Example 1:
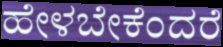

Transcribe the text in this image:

ಹೇಳಬೇಕೆಂದರೆ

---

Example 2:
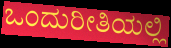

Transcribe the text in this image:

ಒಂದುರೀತಿಯಲ್ಲಿ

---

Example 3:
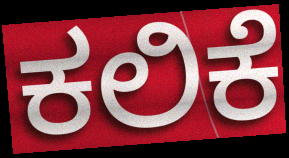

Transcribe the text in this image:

ಕಲಿಕೆ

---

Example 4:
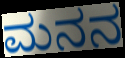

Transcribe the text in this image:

ಮನನ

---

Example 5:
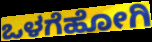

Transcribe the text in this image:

ಒಳಗೆಹೋಗಿ